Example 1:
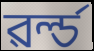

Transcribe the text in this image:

ৱৰ্ল্ড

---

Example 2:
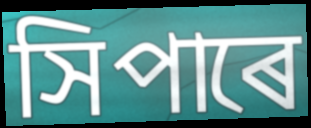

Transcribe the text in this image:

সিপাৰে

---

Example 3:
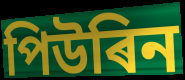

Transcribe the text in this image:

পিউৰিন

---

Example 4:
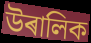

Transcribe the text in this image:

উৰালিক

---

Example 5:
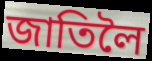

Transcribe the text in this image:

জাতিলৈ